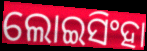
ଲୋଇସିଂହା